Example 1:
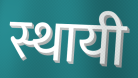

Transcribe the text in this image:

स्थायी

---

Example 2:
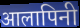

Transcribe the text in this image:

आलापिनी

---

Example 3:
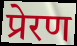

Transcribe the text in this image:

प्रेरण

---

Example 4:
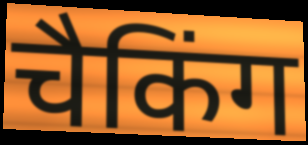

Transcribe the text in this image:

चैकिंग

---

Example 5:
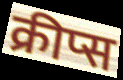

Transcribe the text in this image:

क्रीप्स